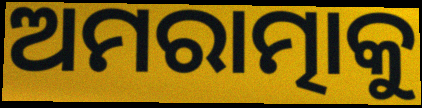
ଅମରାତ୍ମାକୁ